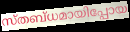
സ്തബ്ധമായിപ്പോയ